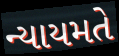
ન્યાયમતે